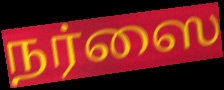
நர்ஸை